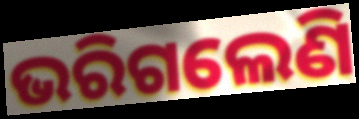
ଭରିଗଲେଣି